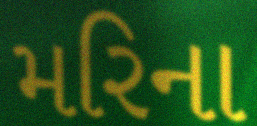
મરિના